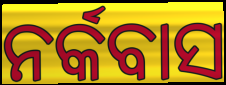
ନର୍କବାସ